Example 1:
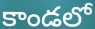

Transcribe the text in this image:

కాండలో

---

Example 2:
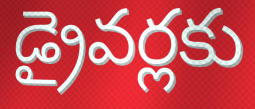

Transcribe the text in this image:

డ్రైవర్లకు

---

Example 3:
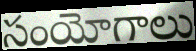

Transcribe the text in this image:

సంయోగాలు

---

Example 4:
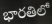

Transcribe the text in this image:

భారతిలో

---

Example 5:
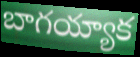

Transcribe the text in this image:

బాగయ్యాక